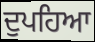
ਦੁਪਹਿਆ